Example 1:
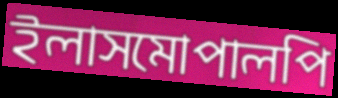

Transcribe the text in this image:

ইলাসমোপালপি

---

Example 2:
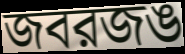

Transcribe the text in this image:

জবরজঙ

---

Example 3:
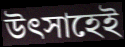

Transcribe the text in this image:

উৎসাহেই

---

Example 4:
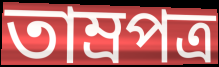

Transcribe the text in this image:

তাম্রপত্র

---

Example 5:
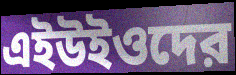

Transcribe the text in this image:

এইউইওদের